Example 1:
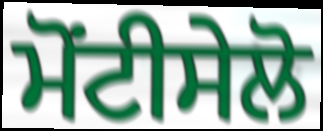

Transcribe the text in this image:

ਮੋਂਟੀਸੇਲੋ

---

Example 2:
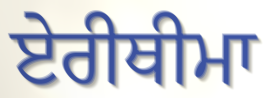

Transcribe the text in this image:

ਏਰੀਥੀਮਾ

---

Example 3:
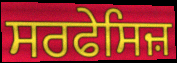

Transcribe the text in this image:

ਸਰਫੇਸਿਜ਼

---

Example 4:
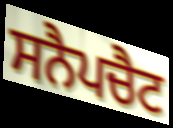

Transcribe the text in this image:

ਸਨੈਪਚੈਟ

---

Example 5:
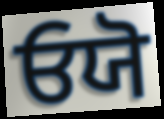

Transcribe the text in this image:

ਓਯੋ